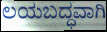
ಲಯಬದ್ಧವಾಗಿ